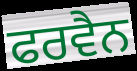
ਫਰਵੈਨ